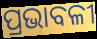
ପ୍ରଭାବଳୀ